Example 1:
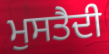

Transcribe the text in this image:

ਮੁਸਤੈਦੀ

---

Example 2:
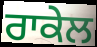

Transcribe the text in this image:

ਰਾਕੇਲ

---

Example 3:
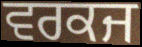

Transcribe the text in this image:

ਵਰਕਜ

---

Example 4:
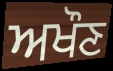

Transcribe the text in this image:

ਅਖੌਣ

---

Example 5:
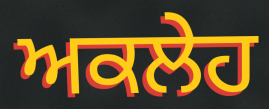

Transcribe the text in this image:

ਅਕਲੇਹ